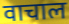
वाचाल